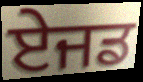
ਏਜਡ